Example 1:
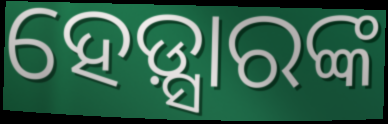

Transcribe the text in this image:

ହେଡ଼୍ସାରଙ୍କ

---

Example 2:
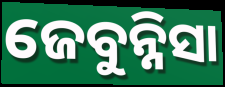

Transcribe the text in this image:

ଜେବୁନ୍ନିସା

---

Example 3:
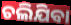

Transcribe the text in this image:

ଚଲିଯିବା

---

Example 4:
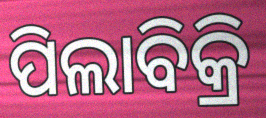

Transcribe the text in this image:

ପିଲାବିକ୍ରି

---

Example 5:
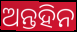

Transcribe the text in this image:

ଅନ୍ତହିନ